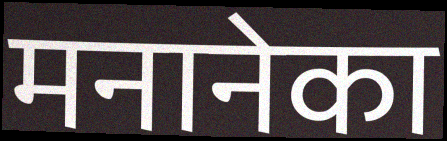
मनानेका